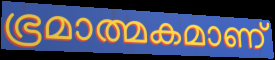
ഭ്രമാത്മകമാണ്